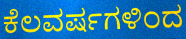
ಕೆಲವರ್ಷಗಳಿಂದ